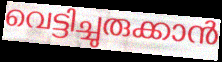
വെട്ടിച്ചുരുക്കാൻ